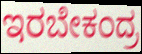
ಇರಬೇಕಂದ್ರ